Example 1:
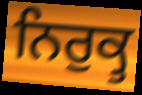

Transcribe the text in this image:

ਨਿਰੁਕ੍ਤ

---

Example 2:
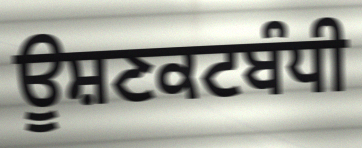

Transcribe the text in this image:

ਊਸ਼ਣਕਟਬੰਧੀ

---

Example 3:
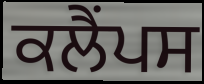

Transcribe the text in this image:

ਕਲੈਂਪਸ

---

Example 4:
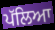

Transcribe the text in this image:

ਪੱਲਿਆ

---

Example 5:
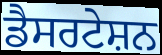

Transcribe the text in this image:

ਡੈਸਰਟੇਸ਼ਨ